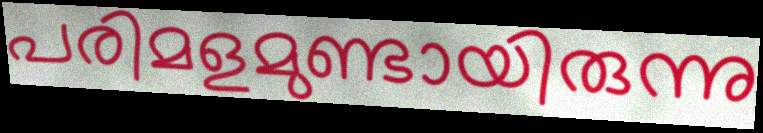
പരിമളമുണ്ടായിരുന്നു